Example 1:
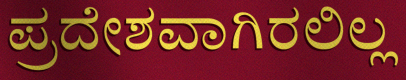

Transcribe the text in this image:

ಪ್ರದೇಶವಾಗಿರಲಿಲ್ಲ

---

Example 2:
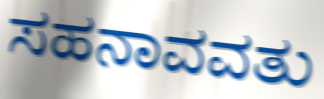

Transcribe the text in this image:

ಸಹನಾವವತು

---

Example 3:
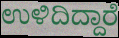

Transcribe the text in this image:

ಉಳಿದಿದ್ದಾರೆ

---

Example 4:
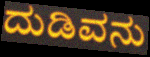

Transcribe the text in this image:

ದುಡಿವನು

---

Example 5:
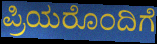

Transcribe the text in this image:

ಪ್ರಿಯರೊಂದಿಗೆ